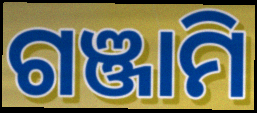
ଗଞ୍ଜାମି